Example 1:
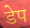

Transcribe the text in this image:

डेप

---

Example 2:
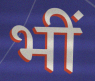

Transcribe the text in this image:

भीं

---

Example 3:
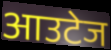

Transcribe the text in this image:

आउटेज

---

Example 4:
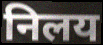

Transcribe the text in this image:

निलय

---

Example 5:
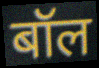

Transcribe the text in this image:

बॉल